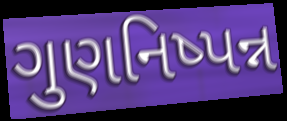
ગુણનિષ્પન્ન